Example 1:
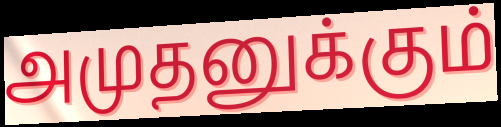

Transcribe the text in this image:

அமுதனுக்கும்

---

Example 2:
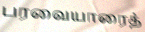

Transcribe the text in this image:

பரவையாரைத்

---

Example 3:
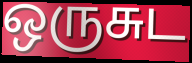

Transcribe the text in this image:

ஒருசுட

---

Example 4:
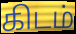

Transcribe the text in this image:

கிடம்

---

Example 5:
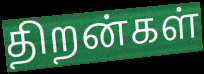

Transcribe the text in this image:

திறன்கள்